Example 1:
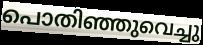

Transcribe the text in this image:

പൊതിഞ്ഞുവെച്ചു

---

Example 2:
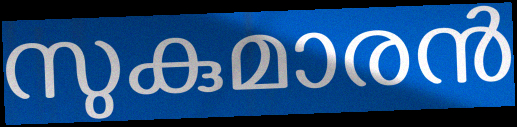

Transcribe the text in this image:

സുകുമാരൻ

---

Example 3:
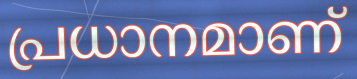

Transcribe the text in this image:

പ്രധാനമാണ്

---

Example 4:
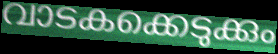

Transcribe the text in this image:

വാടകക്കെടുക്കും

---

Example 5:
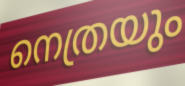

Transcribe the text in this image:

നെത്രയും